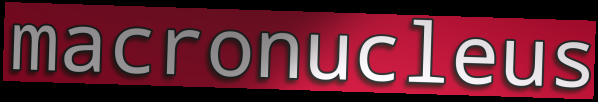
macronucleus